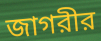
জাগরীর